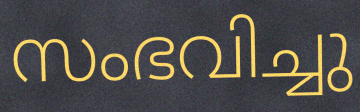
സംഭവിച്ചു